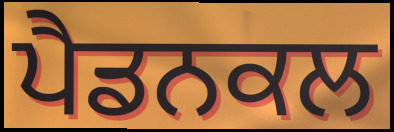
ਪੈਡਨਕਲ